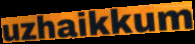
uzhaikkum